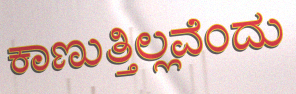
ಕಾಣುತ್ತಿಲ್ಲವೆಂದು